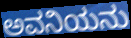
ಅವನಿಯನು